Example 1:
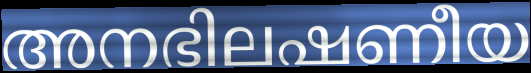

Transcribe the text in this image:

അനഭിലഷണീയ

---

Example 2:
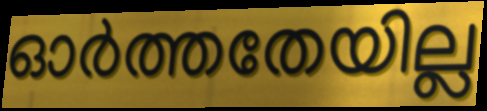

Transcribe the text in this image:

ഓർത്തതേയില്ല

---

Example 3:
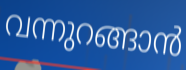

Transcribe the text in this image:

വന്നുറങ്ങാൻ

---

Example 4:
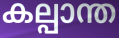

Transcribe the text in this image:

കല്പാന്ത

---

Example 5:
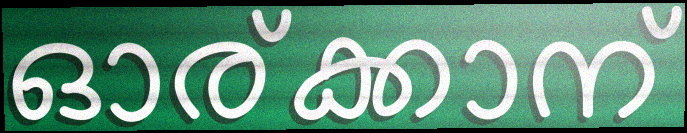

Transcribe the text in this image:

ഓര്ക്കാന്